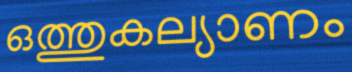
ഒത്തുകല്യാണം